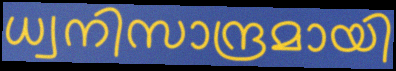
ധ്വനിസാന്ദ്രമായി